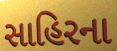
સાહિરના